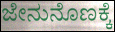
ಜೇನುನೊಣಕ್ಕೆ